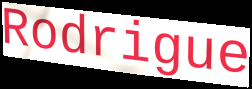
Rodrigue